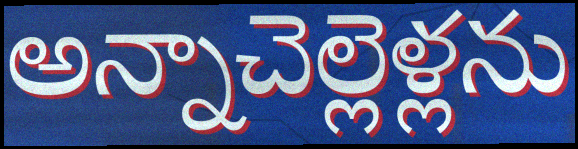
అన్నాచెల్లెళ్లను